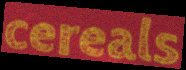
cereals